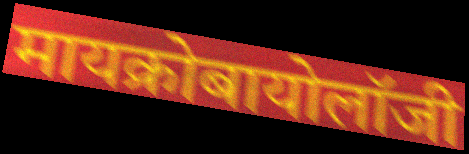
मायक्रोबायोलॉजी